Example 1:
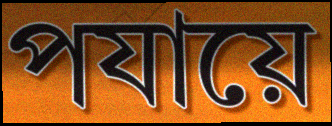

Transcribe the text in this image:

পযায়ে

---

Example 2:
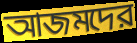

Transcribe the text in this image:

আজমদের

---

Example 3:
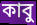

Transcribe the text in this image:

কাবু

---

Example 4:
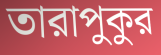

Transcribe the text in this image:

তারাপুকুর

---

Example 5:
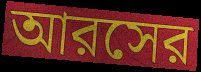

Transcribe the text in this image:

আরসের